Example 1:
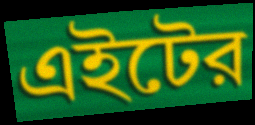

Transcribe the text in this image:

এইটের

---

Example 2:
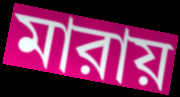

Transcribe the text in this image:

মারায়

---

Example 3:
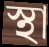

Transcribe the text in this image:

স্থা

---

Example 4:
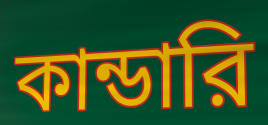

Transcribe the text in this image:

কান্ডারি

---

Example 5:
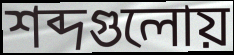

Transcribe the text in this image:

শব্দগুলোয়